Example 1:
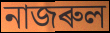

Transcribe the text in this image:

নাজৰুল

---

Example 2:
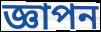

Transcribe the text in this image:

জ্ঞাপন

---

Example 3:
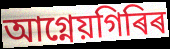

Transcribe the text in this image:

আগ্নেয়গিৰিৰ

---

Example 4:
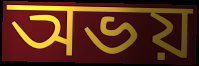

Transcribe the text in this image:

অভয়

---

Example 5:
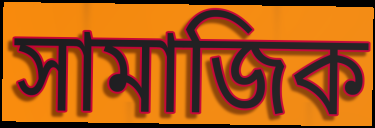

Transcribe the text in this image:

সামাজিক